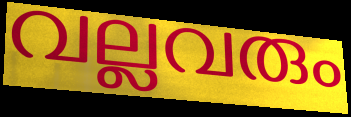
വല്ലവരും